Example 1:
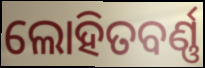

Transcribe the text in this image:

ଲୋହିତବର୍ଣ୍ଣ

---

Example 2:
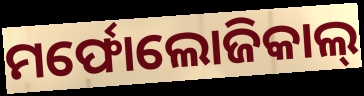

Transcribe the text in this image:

ମର୍ଫୋଲୋଜିକାଲ୍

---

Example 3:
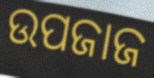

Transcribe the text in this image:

ଉପଜାଜ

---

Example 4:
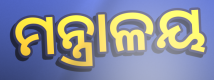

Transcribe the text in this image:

ମନ୍ତ୍ରାଳୟ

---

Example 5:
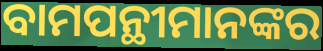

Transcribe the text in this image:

ବାମପନ୍ଥୀମାନଙ୍କର